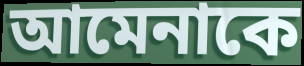
আমেনাকে